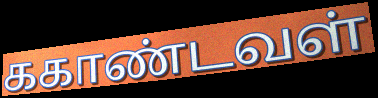
ககாண்டவள்